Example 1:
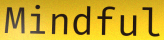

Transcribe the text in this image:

Mindful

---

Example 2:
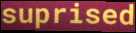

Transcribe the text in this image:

suprised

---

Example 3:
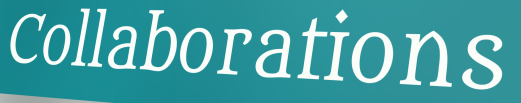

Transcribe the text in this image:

Collaborations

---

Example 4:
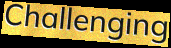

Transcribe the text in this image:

Challenging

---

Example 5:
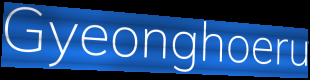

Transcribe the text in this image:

Gyeonghoeru